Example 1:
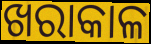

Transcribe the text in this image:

ଖରାକାଳ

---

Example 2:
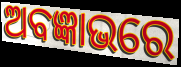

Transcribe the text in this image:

ଅବଜ୍ଞାଭରେ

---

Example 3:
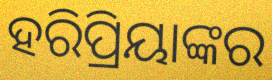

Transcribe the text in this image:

ହରିପ୍ରିୟାଙ୍କର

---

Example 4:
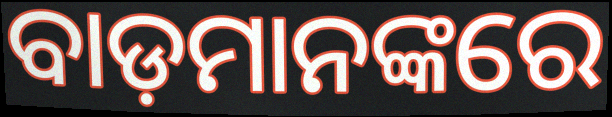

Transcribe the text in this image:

ବାଡ଼ମାନଙ୍କରେ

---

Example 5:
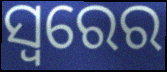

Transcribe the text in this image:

ସ୍ୱରେର